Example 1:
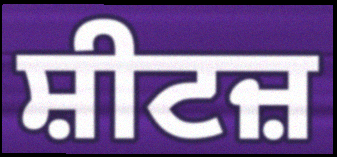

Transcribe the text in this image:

ਸ਼ੀਟਜ਼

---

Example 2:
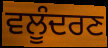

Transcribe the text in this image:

ਵਲੂੰਦਰਣ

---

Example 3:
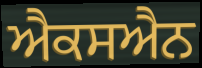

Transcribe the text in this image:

ਐਕਸਐਨ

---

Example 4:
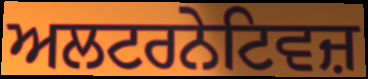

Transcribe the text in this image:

ਅਲਟਰਨੇਟਿਵਜ਼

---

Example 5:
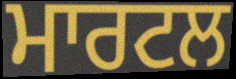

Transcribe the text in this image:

ਮਾਰਟਲ